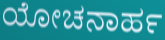
ಯೋಚನಾರ್ಹ